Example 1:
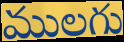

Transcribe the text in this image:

ములగు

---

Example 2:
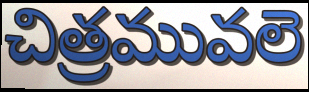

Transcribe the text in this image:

చిత్రమువలె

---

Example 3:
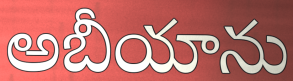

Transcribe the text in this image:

అబీయాను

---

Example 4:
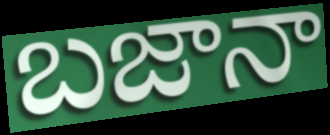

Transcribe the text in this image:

బజానా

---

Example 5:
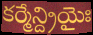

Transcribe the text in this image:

కర్మేన్ద్రియైః